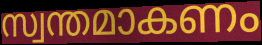
സ്വന്തമാകണം